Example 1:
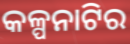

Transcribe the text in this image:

କଳ୍ପନାଟିର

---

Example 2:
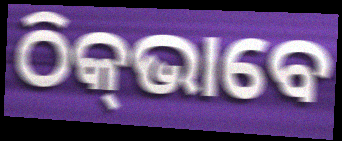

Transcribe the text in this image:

ଠିକ୍‍ଭାବେ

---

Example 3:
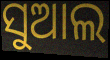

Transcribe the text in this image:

ସୁଆଲ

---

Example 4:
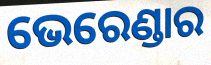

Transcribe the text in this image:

ଭେରେଣ୍ଡାର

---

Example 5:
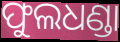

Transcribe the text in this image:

ଫୁଲଧଣ୍ଡା